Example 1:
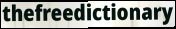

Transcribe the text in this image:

thefreedictionary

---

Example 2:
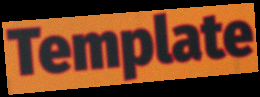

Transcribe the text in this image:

Template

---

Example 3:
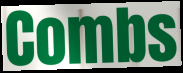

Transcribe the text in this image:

Combs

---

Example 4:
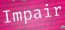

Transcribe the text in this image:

Impair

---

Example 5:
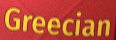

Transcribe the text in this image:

Greecian